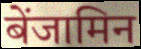
बेंजामिन